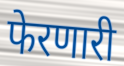
फेरणारी